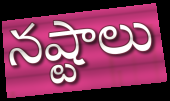
నష్టాలు